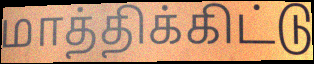
மாத்திக்கிட்டு